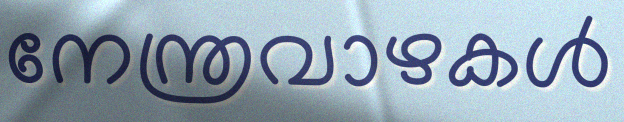
നേന്ത്രവാഴകൾ